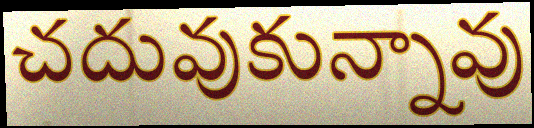
చదువుకున్నావు